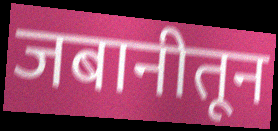
जबानीतून